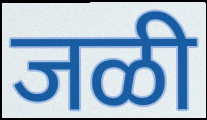
जळी